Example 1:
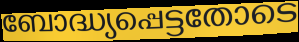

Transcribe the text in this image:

ബോദ്ധ്യപ്പെട്ടതോടെ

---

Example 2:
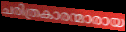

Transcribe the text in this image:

ചരിത്രകാരന്മാരായ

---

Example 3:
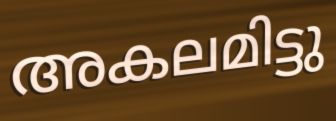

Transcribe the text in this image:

അകലമിട്ടു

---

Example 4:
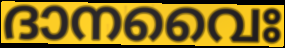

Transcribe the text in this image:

ദാനവൈഃ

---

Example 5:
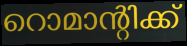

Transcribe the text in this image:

റൊമാന്റിക്ക്